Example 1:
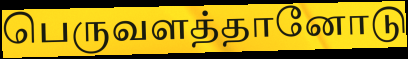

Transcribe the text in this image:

பெருவளத்தானோடு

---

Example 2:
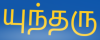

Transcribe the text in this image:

யுந்தரு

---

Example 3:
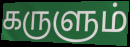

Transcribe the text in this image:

கருளும்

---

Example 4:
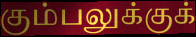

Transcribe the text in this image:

கும்பலுக்குக்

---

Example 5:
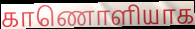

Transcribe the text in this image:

காணொளியாக